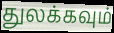
துலக்கவும்